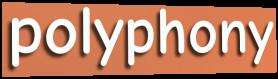
polyphony